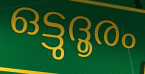
ഒട്ടുദൂരം